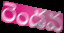
రెండవ